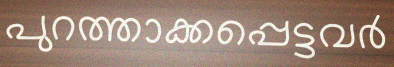
പുറത്താക്കപ്പെട്ടവർ